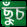
ছুঁচ